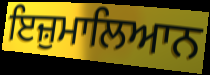
ਇਜ਼ੁਮਾਲਿਆਨ